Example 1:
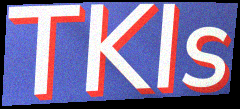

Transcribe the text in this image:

TKIs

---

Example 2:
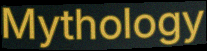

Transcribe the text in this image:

Mythology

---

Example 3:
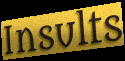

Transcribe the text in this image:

Insults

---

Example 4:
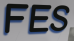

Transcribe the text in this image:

FES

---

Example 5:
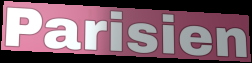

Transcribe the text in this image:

Parisien